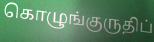
கொழுங்குருதிப்